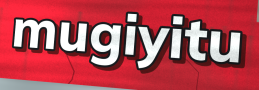
mugiyitu